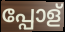
പ്പോള്